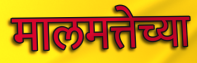
मालमत्तेच्या